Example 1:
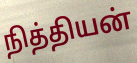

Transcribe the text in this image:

நித்தியன்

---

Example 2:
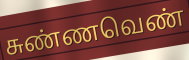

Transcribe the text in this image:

சுண்ணவெண்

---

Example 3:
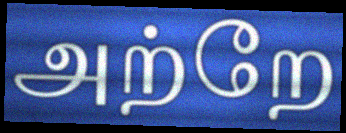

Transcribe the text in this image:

அற்றே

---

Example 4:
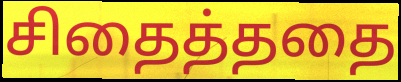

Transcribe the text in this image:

சிதைத்ததை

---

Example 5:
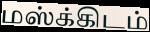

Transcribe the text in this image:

மஸ்க்கிடம்